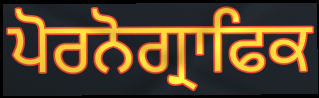
ਪੋਰਨੋਗ੍ਰਾਫਿਕ